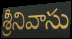
శ్రీనివాసు